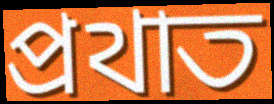
প্ৰথাত